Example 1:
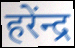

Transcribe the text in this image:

हरेंन्द्र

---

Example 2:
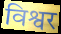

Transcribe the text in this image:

विश्वर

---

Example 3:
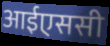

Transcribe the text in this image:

आईएससी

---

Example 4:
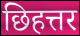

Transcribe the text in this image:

छिहत्तर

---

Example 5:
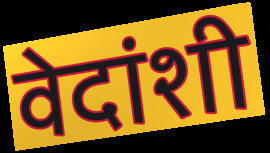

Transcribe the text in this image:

वेदांशी